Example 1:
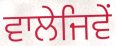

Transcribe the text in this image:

ਵਾਲੇਜਿਵੇਂ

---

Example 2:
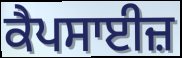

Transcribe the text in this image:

ਕੈਪਸਾਈਜ਼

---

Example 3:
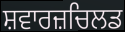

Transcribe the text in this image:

ਸ਼ਵਾਰਜ਼ਚਿਲਡ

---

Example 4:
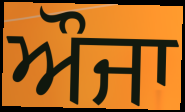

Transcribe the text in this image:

ਔਜਾ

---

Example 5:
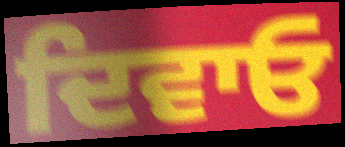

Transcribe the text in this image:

ਦਿਵਾਓ